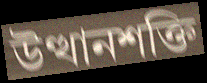
উত্থানশক্তি